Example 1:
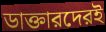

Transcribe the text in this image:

ডাক্তারদেরই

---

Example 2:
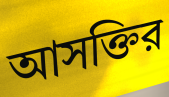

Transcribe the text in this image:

আসক্তির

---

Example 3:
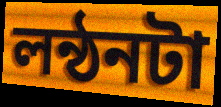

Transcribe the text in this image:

লন্ঠনটা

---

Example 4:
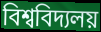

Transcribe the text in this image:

বিশ্ববিদ্যলয়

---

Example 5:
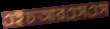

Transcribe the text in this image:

এইচআরএসএস